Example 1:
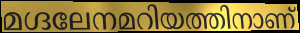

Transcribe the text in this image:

മഗ്ദലേനമറിയത്തിനാണ്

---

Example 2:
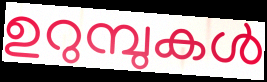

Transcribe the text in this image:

ഉറുമ്പുകൾ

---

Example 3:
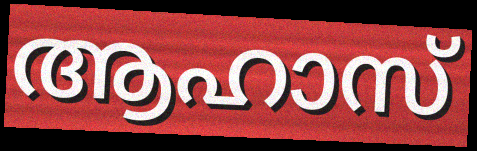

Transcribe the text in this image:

ആഹാസ്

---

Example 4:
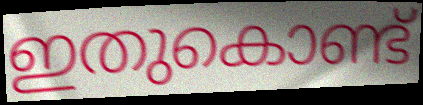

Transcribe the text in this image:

ഇതുകൊണ്ട്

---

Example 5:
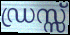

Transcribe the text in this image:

ഡ്രസ്സ്